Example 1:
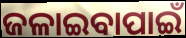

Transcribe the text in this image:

ଜଳାଇବାପାଇଁ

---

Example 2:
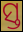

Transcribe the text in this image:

ସ୍ତ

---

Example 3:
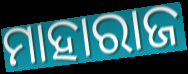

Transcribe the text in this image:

ମାହାରାଜ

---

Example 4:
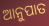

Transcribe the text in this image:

ଆନୁପାତ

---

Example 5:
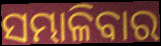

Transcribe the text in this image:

ସମ୍ଭାଳିବାର